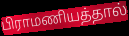
பிராமணியத்தால்